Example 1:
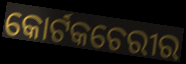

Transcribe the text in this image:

କୋର୍ଟକଚେରୀର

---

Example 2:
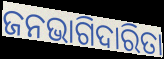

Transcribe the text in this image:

ଜନଭାଗିଦାରିତା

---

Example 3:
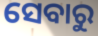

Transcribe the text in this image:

ସେବାରୁ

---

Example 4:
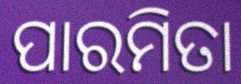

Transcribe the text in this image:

ପାରମିତା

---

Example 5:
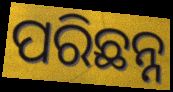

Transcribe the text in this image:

ପରିଛନ୍ନ